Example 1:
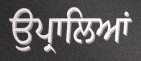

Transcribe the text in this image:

ਉਪ੍ਰਾਲਿਆਂ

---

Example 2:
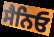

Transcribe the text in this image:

ਸੈਨਿਓ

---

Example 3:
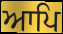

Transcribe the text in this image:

ਆਪਿ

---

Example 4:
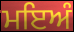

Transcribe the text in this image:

ਮਇਅੰ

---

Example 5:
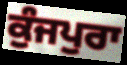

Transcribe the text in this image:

ਕੁੰਜਪੁਰਾ